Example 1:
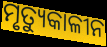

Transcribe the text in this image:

ମୃତ୍ୟୁକାଳୀନ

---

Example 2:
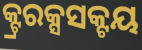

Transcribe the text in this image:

କ୍ଟ୍ରରକ୍ସସକ୍ଟୟ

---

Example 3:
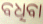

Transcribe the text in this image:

ବଧିବା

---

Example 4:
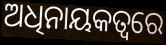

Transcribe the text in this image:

ଅଧିନାୟକତ୍ବରେ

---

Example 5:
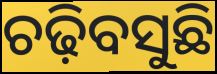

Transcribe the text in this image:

ଚଢ଼ିବସୁଛି